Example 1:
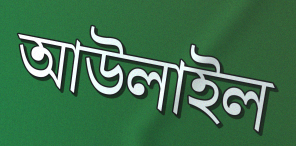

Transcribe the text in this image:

আউলাইল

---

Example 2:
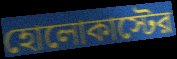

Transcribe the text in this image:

হোলোকাস্টের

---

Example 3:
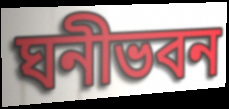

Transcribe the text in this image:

ঘনীভবন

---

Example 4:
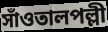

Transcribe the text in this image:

সাঁওতালপল্লী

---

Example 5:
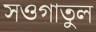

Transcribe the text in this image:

সওগাতুল